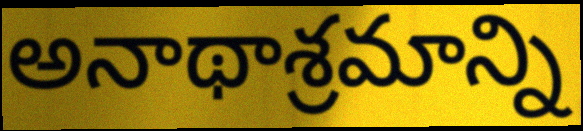
అనాథాశ్రమాన్ని